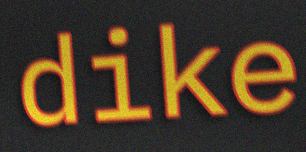
dike